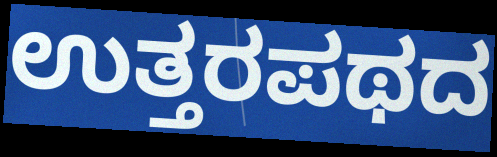
ಉತ್ತರಪಥದ